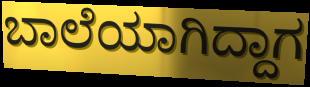
ಬಾಲೆಯಾಗಿದ್ದಾಗ